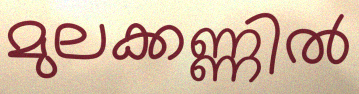
മുലക്കണ്ണിൽ